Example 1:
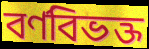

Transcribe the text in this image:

বর্ণবিভক্ত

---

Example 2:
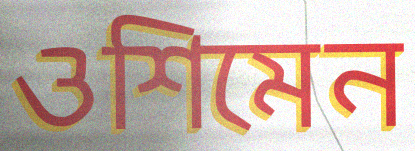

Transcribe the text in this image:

ওশিমেন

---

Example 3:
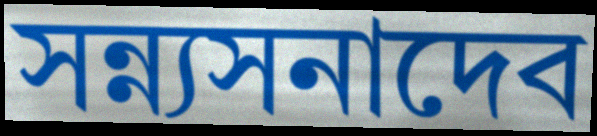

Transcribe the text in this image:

সন্ন্যসনাদেব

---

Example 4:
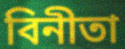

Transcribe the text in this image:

বিনীতা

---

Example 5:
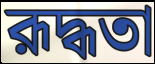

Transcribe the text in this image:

রূদ্ধতা